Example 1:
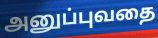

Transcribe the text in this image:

அனுப்புவதை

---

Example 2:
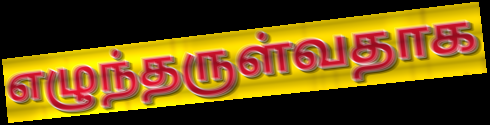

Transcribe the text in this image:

எழுந்தருள்வதாக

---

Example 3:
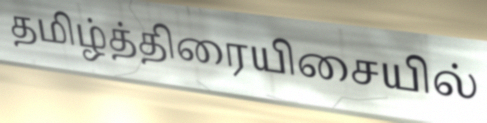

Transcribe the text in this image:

தமிழ்த்திரையிசையில்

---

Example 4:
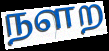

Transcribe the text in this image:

நளற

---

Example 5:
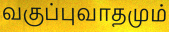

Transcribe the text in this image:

வகுப்புவாதமும்